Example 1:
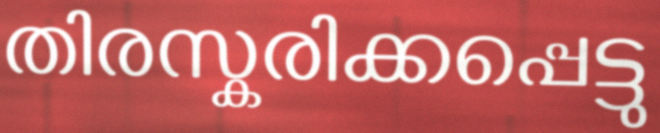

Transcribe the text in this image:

തിരസ്കരിക്കപ്പെട്ടു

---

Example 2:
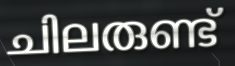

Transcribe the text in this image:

ചിലരുണ്ട്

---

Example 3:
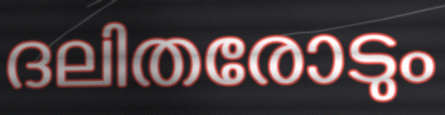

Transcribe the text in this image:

ദലിതരോടും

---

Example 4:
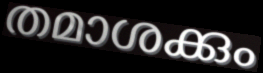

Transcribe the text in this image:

തമാശക്കും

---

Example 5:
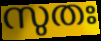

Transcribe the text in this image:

സുതഃ